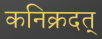
कनिक्रदत्